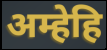
अम्हेहि